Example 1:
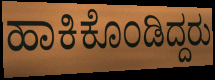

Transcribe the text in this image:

ಹಾಕಿಕೊಂಡಿದ್ದರು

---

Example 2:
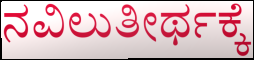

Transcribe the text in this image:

ನವಿಲುತೀರ್ಥಕ್ಕೆ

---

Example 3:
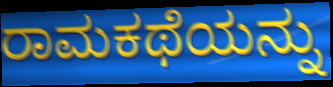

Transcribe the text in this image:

ರಾಮಕಥೆಯನ್ನು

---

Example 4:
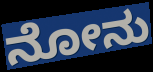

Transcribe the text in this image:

ನೋನು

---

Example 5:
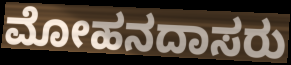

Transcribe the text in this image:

ಮೋಹನದಾಸರು